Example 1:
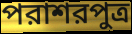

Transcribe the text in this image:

পরাশরপুত্র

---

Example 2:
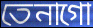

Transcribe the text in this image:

তেনাগো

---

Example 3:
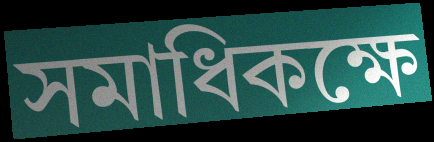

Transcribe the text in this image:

সমাধিকক্ষে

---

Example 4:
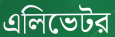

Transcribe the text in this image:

এলিভেটর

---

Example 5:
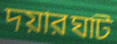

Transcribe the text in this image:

দয়ারঘাট